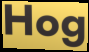
Hog